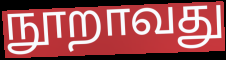
நூறாவது